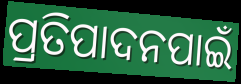
ପ୍ରତିପାଦନପାଇଁ